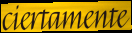
ciertamente